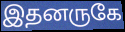
இதனருகே